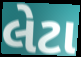
લેટા